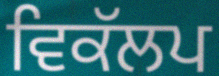
ਵਿਕੱਲਪ